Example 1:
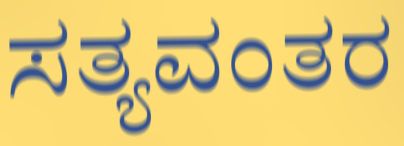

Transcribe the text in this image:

ಸತ್ಯವಂತರ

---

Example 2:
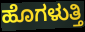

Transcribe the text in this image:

ಹೊಗಳುತ್ತಿ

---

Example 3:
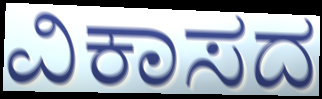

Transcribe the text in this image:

ವಿಕಾಸದ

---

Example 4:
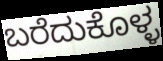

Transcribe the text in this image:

ಬರೆದುಕೊಳ್ಳ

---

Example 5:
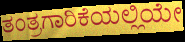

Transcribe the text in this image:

ತಂತ್ರಗಾರಿಕೆಯಲ್ಲಿಯೇ